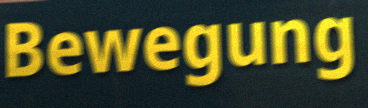
Bewegung